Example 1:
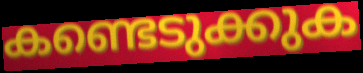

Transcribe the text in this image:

കണ്ടെടുക്കുക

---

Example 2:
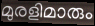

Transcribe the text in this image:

മുരളിമാരും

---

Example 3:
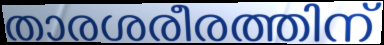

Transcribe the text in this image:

താരശരീരത്തിന്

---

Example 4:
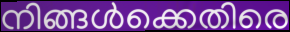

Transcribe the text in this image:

നിങ്ങൾക്കെതിരെ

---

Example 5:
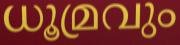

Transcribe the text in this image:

ധൂമ്രവും